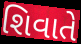
શિવાતે